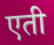
एती